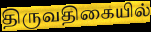
திருவதிகையில்